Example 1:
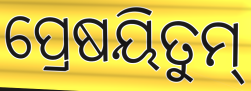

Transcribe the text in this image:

ପ୍ରେଷୟିତୁମ୍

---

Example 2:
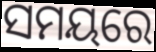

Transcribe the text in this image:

ସମୟରେ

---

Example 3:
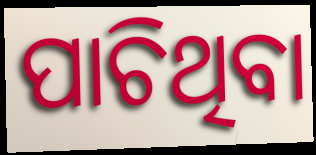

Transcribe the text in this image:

ପାଚିଥିବା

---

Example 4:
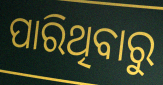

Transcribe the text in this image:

ପାରିଥିବାରୁ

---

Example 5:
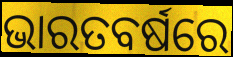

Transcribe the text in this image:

ଭାରତବର୍ଷରେ